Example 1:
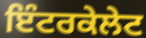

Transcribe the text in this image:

ਇੰਟਰਕੇਲੇਟ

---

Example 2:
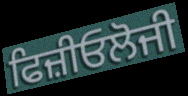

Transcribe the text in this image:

ਫਿਜ਼ੀਓਲੋਜੀ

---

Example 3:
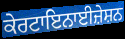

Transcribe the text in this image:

ਕੇਰਟਾਇਨਾਈਜ਼ੇਸ਼ਨ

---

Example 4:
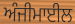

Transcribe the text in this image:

ਅੰਜੀਮਾਈਲ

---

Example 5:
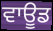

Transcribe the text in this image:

ਵਾਊਡ